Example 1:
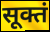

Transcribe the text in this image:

सूक्तं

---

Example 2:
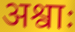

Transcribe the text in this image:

अश्वाः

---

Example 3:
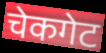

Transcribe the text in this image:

चेकगेट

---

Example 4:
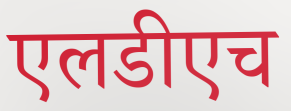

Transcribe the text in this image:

एलडीएच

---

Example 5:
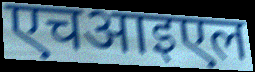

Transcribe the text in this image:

एचआइएल